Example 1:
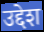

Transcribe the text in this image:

उद्देश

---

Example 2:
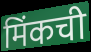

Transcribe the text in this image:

मिंकची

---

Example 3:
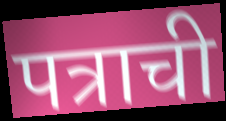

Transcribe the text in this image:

पत्राची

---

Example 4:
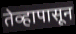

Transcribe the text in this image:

तेव्हापासून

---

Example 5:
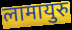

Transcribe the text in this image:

लामायुरु